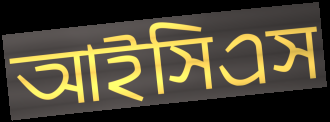
আইসিএস